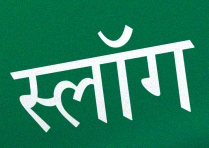
स्लॉग